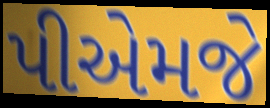
પીએમજે